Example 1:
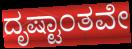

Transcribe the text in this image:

ದೃಷ್ಟಾಂತವೇ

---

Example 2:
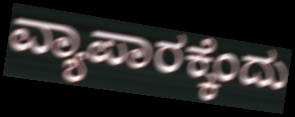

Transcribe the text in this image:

ವ್ಯಾಪಾರಕ್ಕೆಂದು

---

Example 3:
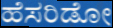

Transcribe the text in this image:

ಹೆಸರಿಡೋ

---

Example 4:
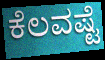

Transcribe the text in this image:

ಕೆಲವಷ್ಟೆ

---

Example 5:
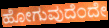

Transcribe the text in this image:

ಹೋಗುವುದೆಂದೇ